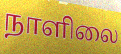
நாளிலை